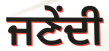
ਜਣੇਂਦੀ